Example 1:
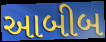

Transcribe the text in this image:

આબીબ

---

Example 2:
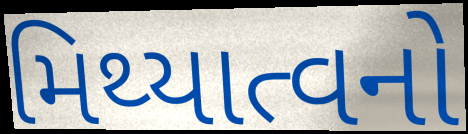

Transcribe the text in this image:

મિથ્યાત્વનો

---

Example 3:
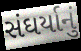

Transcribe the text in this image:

સંઘર્યાનું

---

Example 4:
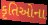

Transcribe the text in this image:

કૃતિઓના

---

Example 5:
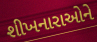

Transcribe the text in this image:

શીખનારાઓને